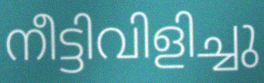
നീട്ടിവിളിച്ചു